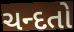
ચન્દતો